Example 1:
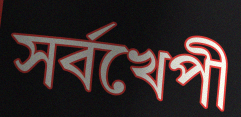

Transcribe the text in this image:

সর্বখেপী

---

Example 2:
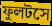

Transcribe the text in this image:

ফুলটসে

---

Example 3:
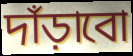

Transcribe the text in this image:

দাঁড়াবো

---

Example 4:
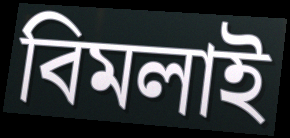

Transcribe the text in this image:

বিমলাই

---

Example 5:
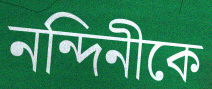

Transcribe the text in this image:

নন্দিনীকে